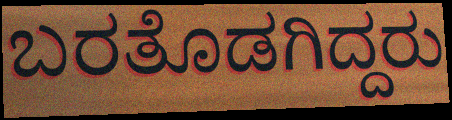
ಬರತೊಡಗಿದ್ದರು